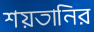
শয়তানির